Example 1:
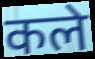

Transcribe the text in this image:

कले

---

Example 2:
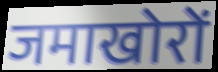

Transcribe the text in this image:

जमाखोरों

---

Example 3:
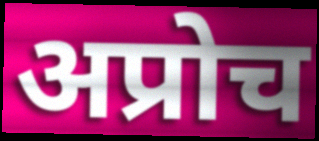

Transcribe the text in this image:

अप्रोच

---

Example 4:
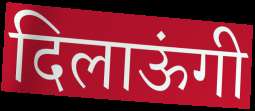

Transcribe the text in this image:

दिलाऊंगी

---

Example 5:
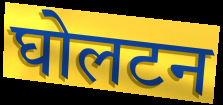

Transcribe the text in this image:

घोलटन